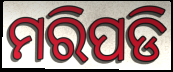
ମରିପଡି